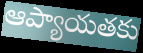
ఆప్యాయతకు